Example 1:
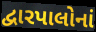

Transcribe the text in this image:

દ્વારપાલોનાં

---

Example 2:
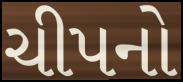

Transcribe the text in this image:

ચીપનો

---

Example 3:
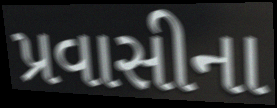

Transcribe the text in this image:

પ્રવાસીના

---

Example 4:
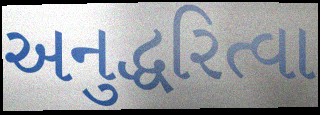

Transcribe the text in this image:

અનુદ્ધરિત્વા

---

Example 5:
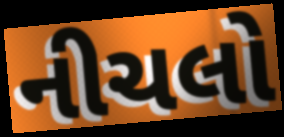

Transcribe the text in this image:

નીચલો